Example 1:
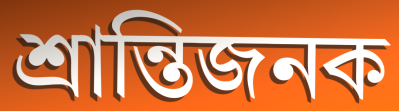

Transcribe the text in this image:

শ্রান্তিজনক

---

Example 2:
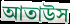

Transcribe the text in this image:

আতাউস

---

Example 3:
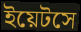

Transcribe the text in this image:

ইয়েটসে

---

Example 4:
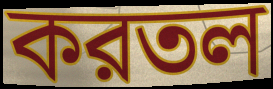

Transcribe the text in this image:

করতল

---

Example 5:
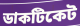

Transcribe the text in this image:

ডাকটিকেট